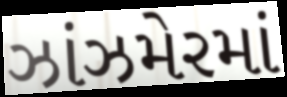
ઝાંઝમેરમાં